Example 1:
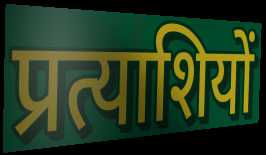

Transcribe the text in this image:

प्रत्याशियों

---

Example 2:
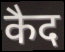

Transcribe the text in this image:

कैद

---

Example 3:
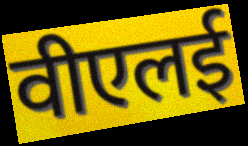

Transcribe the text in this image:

वीएलई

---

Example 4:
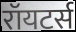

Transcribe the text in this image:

रॉयटर्स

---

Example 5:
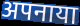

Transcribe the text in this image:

अपनाया